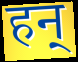
हन्